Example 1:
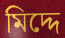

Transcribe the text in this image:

মিদ্দে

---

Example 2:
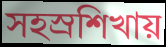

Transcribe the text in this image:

সহস্রশিখায়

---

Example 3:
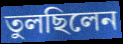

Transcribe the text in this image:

তুলছিলেন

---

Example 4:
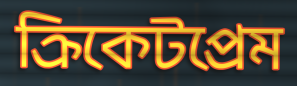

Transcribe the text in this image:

ক্রিকেটপ্রেম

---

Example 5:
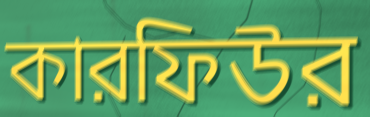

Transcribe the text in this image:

কারফিউর